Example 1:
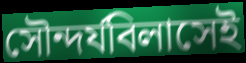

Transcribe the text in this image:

সৌন্দর্যবিলাসেই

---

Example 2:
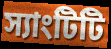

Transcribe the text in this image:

স্যাংটিটি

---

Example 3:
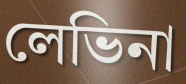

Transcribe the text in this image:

লেভিনা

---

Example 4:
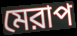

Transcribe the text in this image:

মেরাপ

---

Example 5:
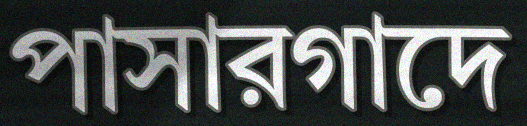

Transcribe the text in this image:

পাসারগাদে